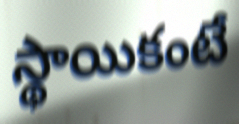
స్థాయికంటే